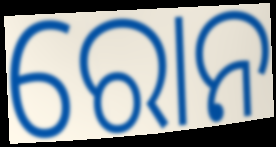
ରୋନ